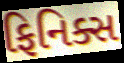
ફિનિક્સ